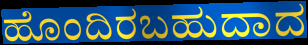
ಹೊಂದಿರಬಹುದಾದ